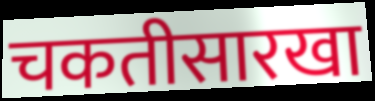
चकतीसारखा